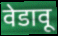
वेडावू